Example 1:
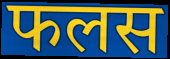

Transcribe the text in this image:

फलस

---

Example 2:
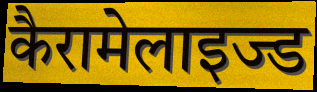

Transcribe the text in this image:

कैरामेलाइज्ड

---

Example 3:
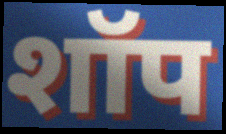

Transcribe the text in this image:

शॉप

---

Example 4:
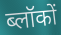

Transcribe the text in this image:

ब्लॉकों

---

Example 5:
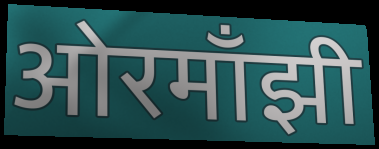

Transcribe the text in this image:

ओरमाँझी